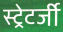
स्ट्रेटर्जी